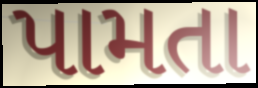
પામતા